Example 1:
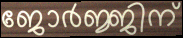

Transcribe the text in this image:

ജോർജ്ജിന്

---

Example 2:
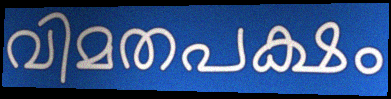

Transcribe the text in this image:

വിമതപക്ഷം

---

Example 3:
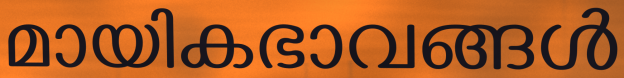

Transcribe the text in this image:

മായികഭാവങ്ങൾ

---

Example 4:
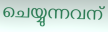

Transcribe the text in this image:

ചെയ്യുന്നവന്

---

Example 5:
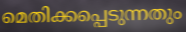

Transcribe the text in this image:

മെതിക്കപ്പെടുന്നതും